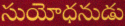
సుయోధనుడు